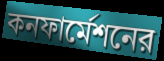
কনফার্মেশনের